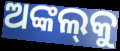
ଅଙ୍କଲ୍‌କୁ